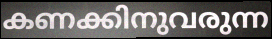
കണക്കിനുവരുന്ന